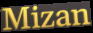
Mizan